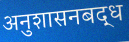
अनुशासनबद्ध